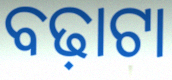
ବଢ଼ାଟା